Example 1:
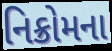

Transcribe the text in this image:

નિક્રોમના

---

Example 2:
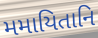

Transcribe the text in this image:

મમાયિતાનિ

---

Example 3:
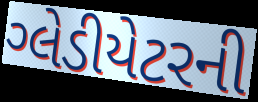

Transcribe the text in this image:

ગ્લેડીયેટરની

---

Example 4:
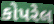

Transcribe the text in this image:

કોપરેલ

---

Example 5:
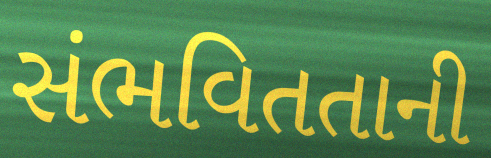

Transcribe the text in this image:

સંભવિતતાની